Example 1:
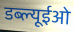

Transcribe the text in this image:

डब्ल्यूईओ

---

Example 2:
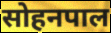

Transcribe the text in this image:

सोहनपाल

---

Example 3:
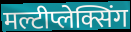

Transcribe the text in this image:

मल्टीप्लेक्सिंग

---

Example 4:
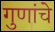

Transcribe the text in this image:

गुणांचे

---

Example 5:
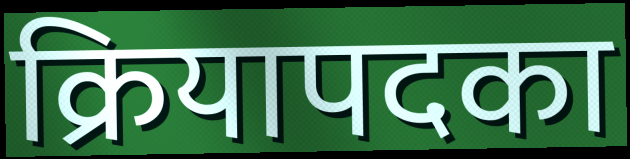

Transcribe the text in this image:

क्रियापदका